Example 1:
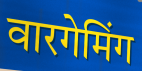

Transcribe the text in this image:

वारगेमिंग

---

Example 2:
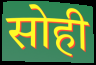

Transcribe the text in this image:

सोही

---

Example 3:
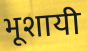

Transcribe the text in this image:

भूशायी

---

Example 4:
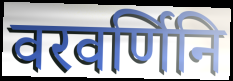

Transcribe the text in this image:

वरवर्णिनि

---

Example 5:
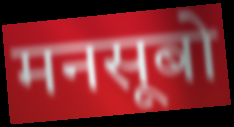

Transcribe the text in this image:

मनसूबो